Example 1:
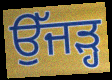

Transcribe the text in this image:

ਉੱਜੜ੍ਹ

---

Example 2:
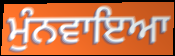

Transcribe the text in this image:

ਮੁੰਨਵਾਇਆ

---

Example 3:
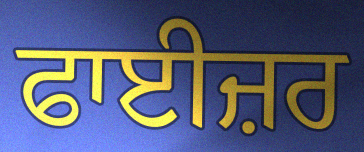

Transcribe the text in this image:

ਫਾਈਜ਼ਰ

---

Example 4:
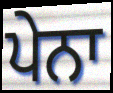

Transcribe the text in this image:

ਪੇਨਾ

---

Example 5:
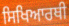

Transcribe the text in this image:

ਸਿਖਿਆਰਥੀ